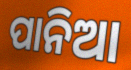
ପାନିଆ